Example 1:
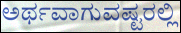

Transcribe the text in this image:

ಅರ್ಥವಾಗುವಷ್ಟರಲ್ಲಿ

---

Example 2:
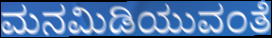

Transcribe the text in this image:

ಮನಮಿಡಿಯುವಂತೆ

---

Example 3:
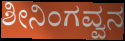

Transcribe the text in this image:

ಶೀನಿಂಗವ್ವನ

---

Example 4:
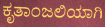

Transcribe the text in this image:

ಕೃತಾಂಜಲಿಯಾಗಿ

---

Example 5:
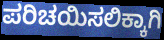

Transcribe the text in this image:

ಪರಿಚಯಿಸಲಿಕ್ಕಾಗಿ